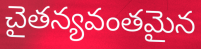
చైతన్యవంతమైన